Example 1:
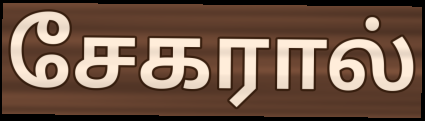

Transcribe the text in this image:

சேகரால்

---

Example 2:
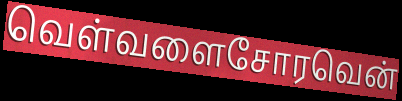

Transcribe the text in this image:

வெள்வளைசோரவென்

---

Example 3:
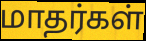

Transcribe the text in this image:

மாதர்கள்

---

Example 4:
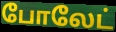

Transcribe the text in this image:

போலேட்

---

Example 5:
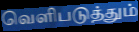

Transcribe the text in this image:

வெளிபடுத்தும்